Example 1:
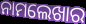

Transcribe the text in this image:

ନାମଲେଖାର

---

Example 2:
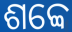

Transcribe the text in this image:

ଶବ୍ବେ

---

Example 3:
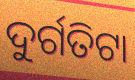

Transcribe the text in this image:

ଦୁର୍ଗତିଟା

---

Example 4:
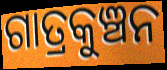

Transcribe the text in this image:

ଗାତ୍ରକୁଞ୍ଚନ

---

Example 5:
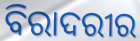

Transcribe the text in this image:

ବିରାଦରୀର